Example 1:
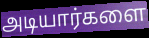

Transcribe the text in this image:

அடியார்களை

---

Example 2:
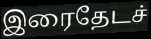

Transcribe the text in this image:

இரைதேடச்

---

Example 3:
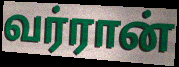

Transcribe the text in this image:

வர்ரான்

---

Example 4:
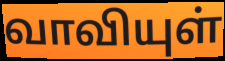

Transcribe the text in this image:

வாவியுள்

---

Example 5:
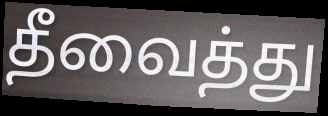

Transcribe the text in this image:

தீவைத்து